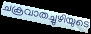
ചക്രവാതച്ചുഴിയുടെ